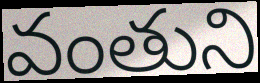
వంతుని